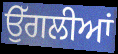
ਉੱਗਲੀਆਂ